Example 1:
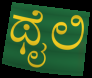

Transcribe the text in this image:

ಥೈಲಿ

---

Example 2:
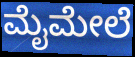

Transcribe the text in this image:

ಮೈಮೇಲೆ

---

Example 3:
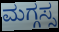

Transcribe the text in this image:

ಮಗ್ಗಸ್ಸ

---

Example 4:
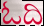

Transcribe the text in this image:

ಓದಿ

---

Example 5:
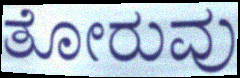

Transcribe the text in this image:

ತೋರುವು